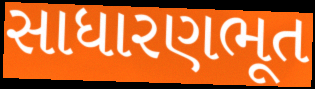
સાધારણભૂત